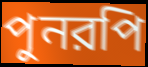
পুনরপি